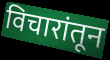
विचारांतून